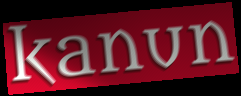
kanun